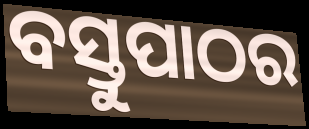
ବସ୍ତୁପାଠର